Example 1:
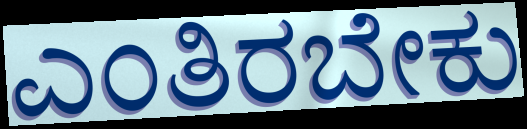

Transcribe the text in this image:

ಎಂತಿರಬೇಕು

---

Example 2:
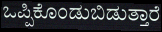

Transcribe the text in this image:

ಒಪ್ಪಿಕೊಂಡುಬಿಡುತ್ತಾರೆ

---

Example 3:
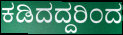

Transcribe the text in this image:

ಕಡಿದದ್ದರಿಂದ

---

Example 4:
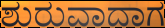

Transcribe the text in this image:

ಶುರುವಾದಾಗ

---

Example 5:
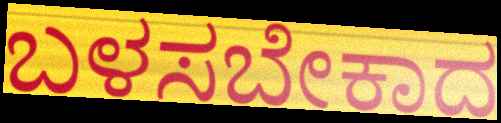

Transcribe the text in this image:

ಬಳಸಬೇಕಾದ